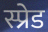
स्प्रेड